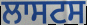
ਲਾਸਟਸ